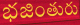
భజింతురు